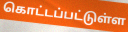
கொட்டப்பட்டுள்ள